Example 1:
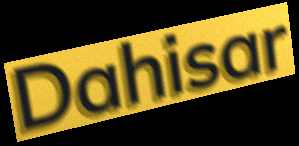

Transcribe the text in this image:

Dahisar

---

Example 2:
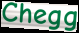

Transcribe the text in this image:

Chegg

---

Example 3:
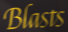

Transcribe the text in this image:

Blasts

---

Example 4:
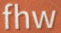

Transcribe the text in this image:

fhw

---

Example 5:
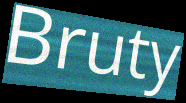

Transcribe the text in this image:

Bruty